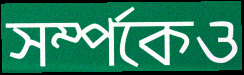
সৰ্ম্পকেও